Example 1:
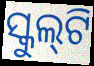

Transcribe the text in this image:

ସ୍କୁଲ୍‌ଟି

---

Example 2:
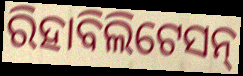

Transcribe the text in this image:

ରିହାବିଲିଟେସନ୍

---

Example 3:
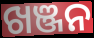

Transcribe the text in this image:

ଖଞ୍ଜନ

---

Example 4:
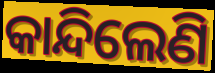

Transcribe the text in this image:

କାନ୍ଦିଲେଣି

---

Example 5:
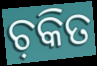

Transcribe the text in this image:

ଚ଼କିତ